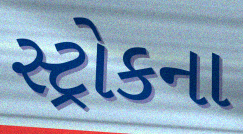
સ્ટ્રોકના